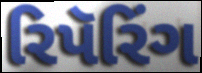
રિપૅરિંગ